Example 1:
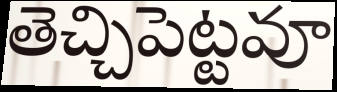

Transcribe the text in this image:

తెచ్చిపెట్టవూ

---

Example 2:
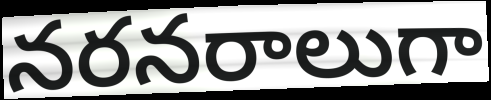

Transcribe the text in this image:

నరనరాలుగా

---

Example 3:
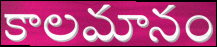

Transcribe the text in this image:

కాలమానం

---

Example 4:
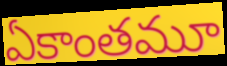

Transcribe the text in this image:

ఏకాంతమూ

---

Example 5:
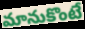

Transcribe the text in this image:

మానుకొంటే